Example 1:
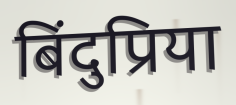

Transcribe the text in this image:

बिंदुप्रिया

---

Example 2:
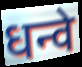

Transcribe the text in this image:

धन्वे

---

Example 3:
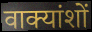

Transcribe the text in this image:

वाक्यांशों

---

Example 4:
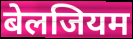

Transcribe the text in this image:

बेलजियम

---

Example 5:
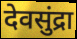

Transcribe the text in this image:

देवसुंद्रा